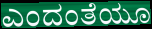
ಎಂದಂತೆಯೂ